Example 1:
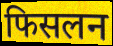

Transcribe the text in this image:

फिसलन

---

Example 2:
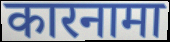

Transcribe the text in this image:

कारनामा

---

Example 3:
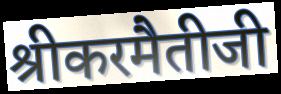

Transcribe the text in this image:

श्रीकरमैतीजी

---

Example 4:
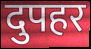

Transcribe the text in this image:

दुपहर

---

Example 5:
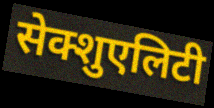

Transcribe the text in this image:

सेक्शुएलिटी